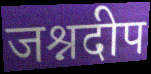
जश्नदीप